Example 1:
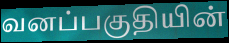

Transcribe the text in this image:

வனப்பகுதியின்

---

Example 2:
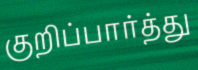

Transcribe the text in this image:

குறிப்பார்த்து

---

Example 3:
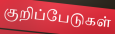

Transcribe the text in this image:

குறிப்பேடுகள்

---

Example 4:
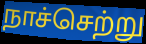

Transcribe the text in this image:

நாச்செற்று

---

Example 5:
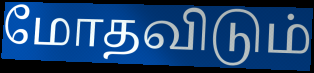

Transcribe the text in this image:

மோதவிடும்